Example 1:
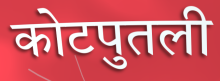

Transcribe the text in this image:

कोटपुतली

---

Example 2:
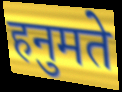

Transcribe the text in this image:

हनुमते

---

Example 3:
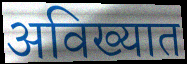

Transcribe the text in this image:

अविख्यात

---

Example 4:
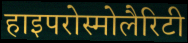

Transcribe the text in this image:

हाइपरोस्मोलैरिटी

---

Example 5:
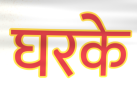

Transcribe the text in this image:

घरके